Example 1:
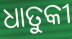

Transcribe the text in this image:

ଧାତୁକୀ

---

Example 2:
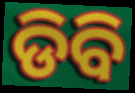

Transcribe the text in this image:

ଡିବି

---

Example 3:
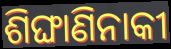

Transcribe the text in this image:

ଶିଙ୍ଘାଣିନାକୀ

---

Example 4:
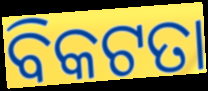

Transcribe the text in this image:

ବିକଟତା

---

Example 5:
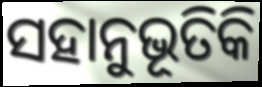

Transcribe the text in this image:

ସହାନୁଭୂତିକି